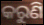
କରୁଣି